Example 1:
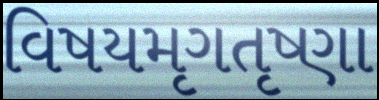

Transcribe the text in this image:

વિષયમૃગતૃષ્ણા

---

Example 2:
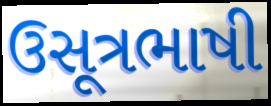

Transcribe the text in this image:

ઉસૂત્રભાષી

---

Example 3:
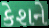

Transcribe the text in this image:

કેશને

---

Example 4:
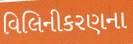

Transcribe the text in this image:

વિલિનીકરણના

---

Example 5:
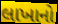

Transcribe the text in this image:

લાખાનો